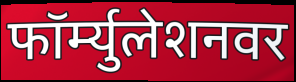
फॉर्म्युलेशनवर